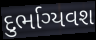
દુર્ભાગ્યવશ